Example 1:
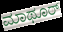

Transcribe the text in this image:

ಮಾಥೂರ್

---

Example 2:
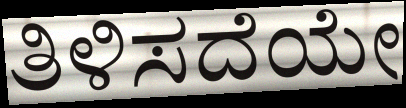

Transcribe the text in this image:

ತಿಳಿಸದೆಯೇ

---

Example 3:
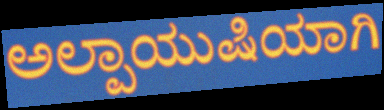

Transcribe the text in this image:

ಅಲ್ಪಾಯುಷಿಯಾಗಿ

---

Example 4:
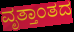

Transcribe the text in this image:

ವೃತ್ತಾಂತದ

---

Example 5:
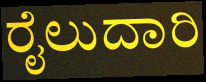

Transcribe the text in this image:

ರೈಲುದಾರಿ